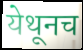
येथूनच